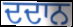
ਦਦਾਨ